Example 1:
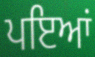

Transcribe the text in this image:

ਪਇਆਂ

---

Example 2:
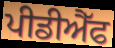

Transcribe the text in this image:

ਪੀਡੀਐੱਫ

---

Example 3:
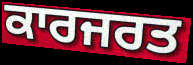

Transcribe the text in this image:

ਕਾਰਜਰਤ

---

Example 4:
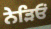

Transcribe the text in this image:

ਨੇੜਿਓਂ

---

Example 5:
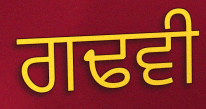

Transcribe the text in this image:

ਗਢਵੀ